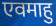
एवमाहु